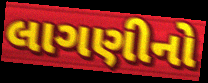
લાગણીનો